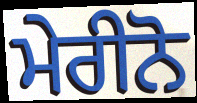
ਮੇਰੀਨੋ